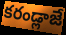
కరండ్లాజే